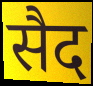
सैद